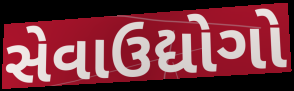
સેવાઉદ્યોગો